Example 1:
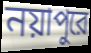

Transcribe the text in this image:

নয়াপুরে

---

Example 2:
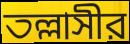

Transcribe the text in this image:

তল্লাসীর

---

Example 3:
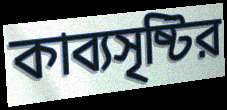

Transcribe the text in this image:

কাব্যসৃষ্টির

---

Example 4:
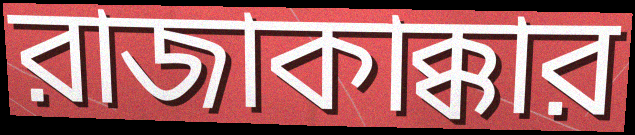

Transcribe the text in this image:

রাজাকাক্কার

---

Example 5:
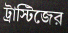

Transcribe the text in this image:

ট্রাস্টিজের